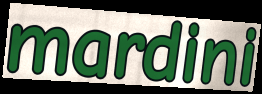
mardini